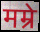
मम्रे